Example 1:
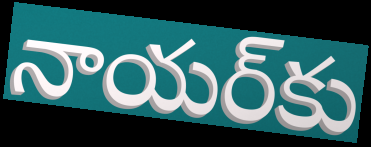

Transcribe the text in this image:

నాయర్‌కు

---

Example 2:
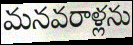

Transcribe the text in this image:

మనవరాళ్లను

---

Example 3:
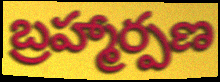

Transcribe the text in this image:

బ్రహ్మార్పణ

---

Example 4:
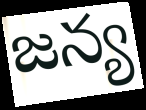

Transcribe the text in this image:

జన్య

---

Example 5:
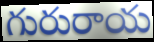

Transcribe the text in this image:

గురురాయ